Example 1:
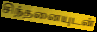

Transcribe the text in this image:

சிந்தனையுடன்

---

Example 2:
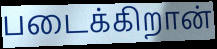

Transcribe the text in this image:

படைக்கிறான்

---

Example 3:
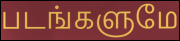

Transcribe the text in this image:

படங்களுமே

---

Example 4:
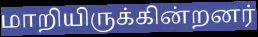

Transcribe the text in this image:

மாறியிருக்கின்றனர்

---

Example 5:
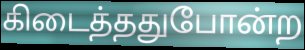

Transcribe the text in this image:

கிடைத்ததுபோன்ற